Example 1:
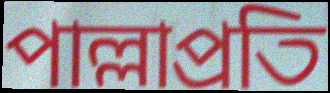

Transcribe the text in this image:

পাল্লাপ্রতি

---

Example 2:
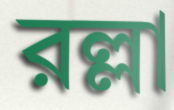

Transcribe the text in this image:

রল্লা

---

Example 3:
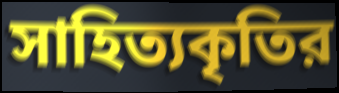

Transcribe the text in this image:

সাহিত্যকৃতির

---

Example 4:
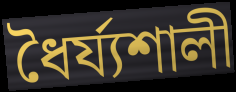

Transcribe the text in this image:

ধৈর্য্যশালী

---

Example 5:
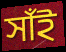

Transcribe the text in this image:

সাঁই